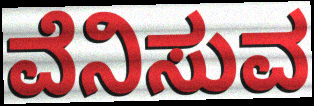
ವೆನಿಸುವ